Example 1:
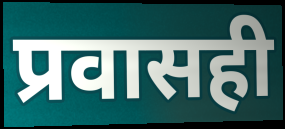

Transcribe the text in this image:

प्रवासही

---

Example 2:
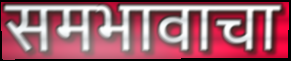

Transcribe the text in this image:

समभावाचा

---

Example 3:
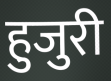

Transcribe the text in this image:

हुजुरी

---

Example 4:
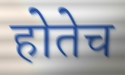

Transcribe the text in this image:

होतेच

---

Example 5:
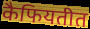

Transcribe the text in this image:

कैफियतीत